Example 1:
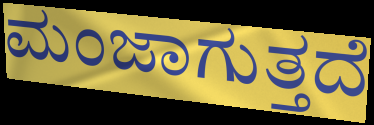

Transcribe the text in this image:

ಮಂಜಾಗುತ್ತದೆ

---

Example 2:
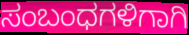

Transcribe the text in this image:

ಸಂಬಂಧಗಳಿಗಾಗಿ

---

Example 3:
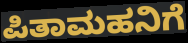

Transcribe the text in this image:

ಪಿತಾಮಹನಿಗೆ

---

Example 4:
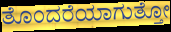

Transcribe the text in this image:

ತೊಂದರೆಯಾಗುತ್ತೋ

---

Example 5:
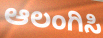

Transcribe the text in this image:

ಆಲಂಗಿಸಿ